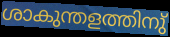
ശാകുന്തളത്തിനു്